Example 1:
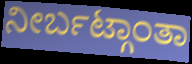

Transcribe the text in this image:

ನೀರ್ಬಟ್ಗಾಂತಾ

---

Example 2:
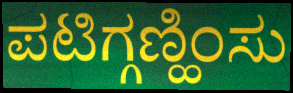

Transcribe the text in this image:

ಪಟಿಗ್ಗಣ್ಹಿಂಸು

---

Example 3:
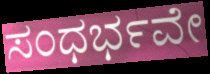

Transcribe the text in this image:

ಸಂಧರ್ಭವೇ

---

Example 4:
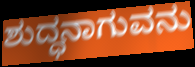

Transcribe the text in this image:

ಶುದ್ಧನಾಗುವನು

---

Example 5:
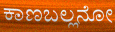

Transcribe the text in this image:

ಕಾಣಬಲ್ಲನೋ